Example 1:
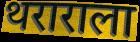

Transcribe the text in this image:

थराराला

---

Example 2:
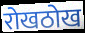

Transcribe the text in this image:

रोखठोख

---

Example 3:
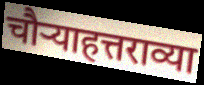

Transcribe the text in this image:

चौऱ्याहत्तराव्या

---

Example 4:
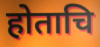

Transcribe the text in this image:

होताचि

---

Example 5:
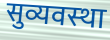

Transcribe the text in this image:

सुव्यवस्था